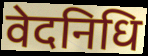
वेदनिधि